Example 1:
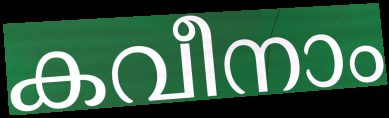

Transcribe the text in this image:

കവീനാം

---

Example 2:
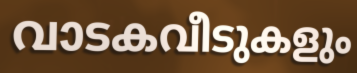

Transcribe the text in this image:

വാടകവീടുകളും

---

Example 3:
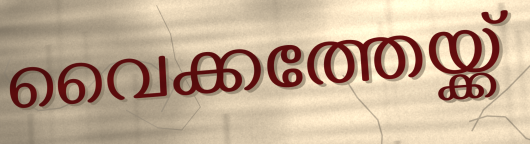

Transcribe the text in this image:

വൈക്കത്തേയ്ക്ക്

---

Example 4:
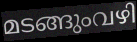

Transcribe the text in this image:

മടങ്ങുംവഴി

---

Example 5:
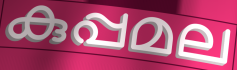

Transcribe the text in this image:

കുപ്പമല